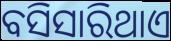
ବସିସାରିଥାଏ